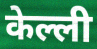
केल्ली